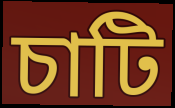
চাটি